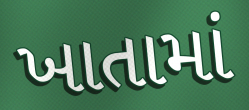
ખાતામાં